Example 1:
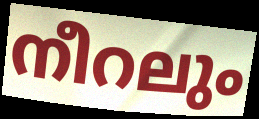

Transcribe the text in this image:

നീറലും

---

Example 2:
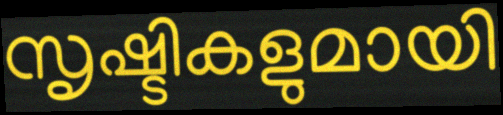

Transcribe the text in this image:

സൃഷ്ടികളുമായി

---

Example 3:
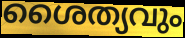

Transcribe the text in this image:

ശൈത്യവും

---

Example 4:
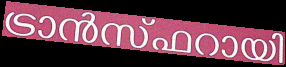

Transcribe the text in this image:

ട്രാൻസ്ഫറായി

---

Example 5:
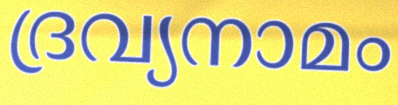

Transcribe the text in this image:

ദ്രവ്യനാമം